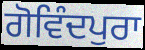
ਗੋਵਿੰਦਪੁਰਾ